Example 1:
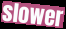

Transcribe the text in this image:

slower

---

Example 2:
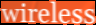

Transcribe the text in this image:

wireless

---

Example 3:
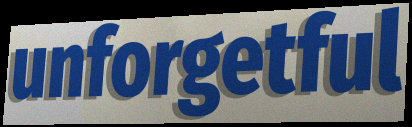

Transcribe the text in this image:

unforgetful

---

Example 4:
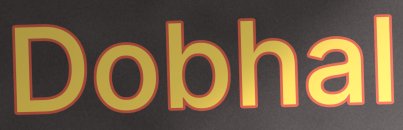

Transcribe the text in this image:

Dobhal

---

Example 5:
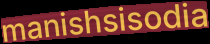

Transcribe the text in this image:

manishsisodia